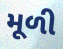
મૂળી